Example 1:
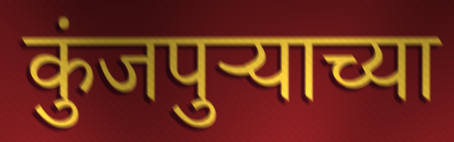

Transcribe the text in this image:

कुंजपुऱ्याच्या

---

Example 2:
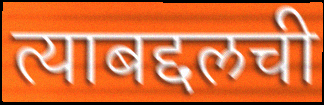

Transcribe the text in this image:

त्याबद्दलची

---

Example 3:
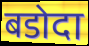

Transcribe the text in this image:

बडोदा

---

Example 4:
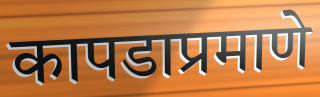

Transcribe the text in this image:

कापडाप्रमाणे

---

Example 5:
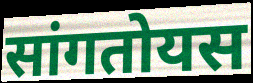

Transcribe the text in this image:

सांगतोयस